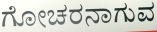
ಗೋಚರನಾಗುವ